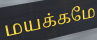
மயக்கமே